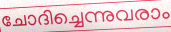
ചോദിച്ചെന്നുവരാം